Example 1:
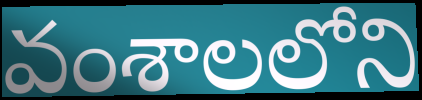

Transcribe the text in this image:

వంశాలలోని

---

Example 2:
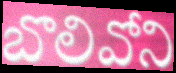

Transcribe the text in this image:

బొలివోని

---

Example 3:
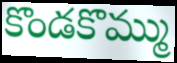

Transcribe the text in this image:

కొండకొమ్ము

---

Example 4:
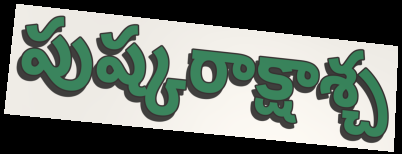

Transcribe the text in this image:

పుష్కరాక్షాశ్చ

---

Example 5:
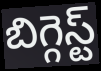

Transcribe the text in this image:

బిగ్గెస్ట్